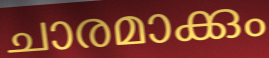
ചാരമാക്കും